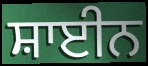
ਸ਼ਾਈਨ